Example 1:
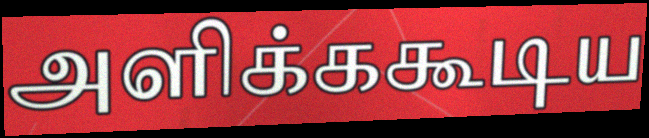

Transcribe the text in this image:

அளிக்ககூடிய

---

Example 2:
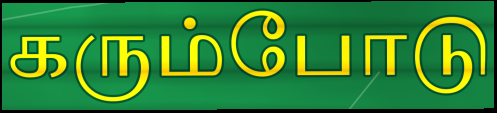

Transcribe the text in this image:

கரும்போடு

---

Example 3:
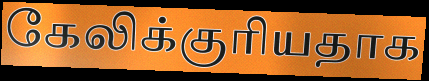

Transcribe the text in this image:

கேலிக்குரியதாக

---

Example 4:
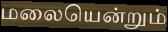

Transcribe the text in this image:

மலையென்றும்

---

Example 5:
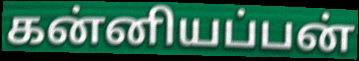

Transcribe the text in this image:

கன்னியப்பன்